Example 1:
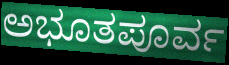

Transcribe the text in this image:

ಅಭೂತಪೂರ್ವ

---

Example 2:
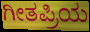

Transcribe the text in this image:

ಗೀತಪ್ರಿಯ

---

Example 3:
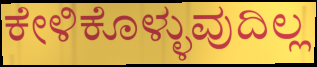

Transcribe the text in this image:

ಕೇಳಿಕೊಳ್ಳುವುದಿಲ್ಲ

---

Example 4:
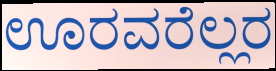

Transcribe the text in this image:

ಊರವರೆಲ್ಲರ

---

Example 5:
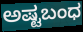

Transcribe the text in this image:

ಅಷ್ಟಬಂಧ